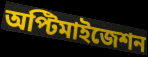
অপ্টিমাইজেশন